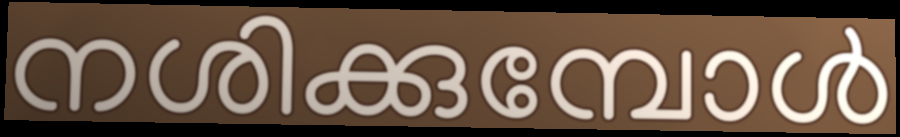
നശിക്കുമ്പോൾ